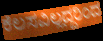
ಕೆಲಸವಿಲ್ಲದ್ದರಿಂದ